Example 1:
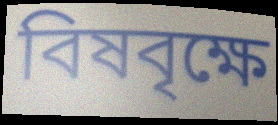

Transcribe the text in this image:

বিষবৃক্ষে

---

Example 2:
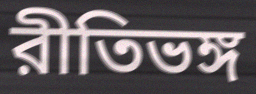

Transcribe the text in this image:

রীতিভঙ্গ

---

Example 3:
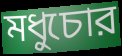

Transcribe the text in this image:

মধুচোর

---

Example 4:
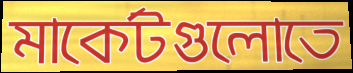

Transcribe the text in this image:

মার্কেটগুলোতে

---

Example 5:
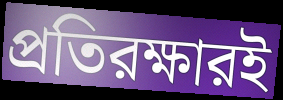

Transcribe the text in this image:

প্রতিরক্ষারই